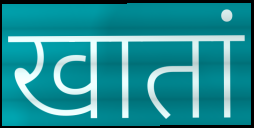
खातां